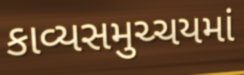
કાવ્યસમુચ્ચયમાં